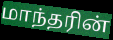
மாந்தரின்